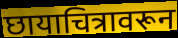
छायाचित्रावरून